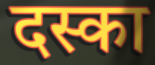
दस्का